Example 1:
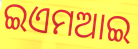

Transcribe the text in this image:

ଇଏମଆଇ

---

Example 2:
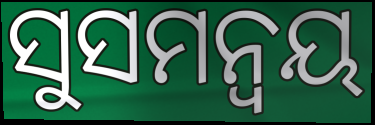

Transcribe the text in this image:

ସୁସମନ୍ୱୟ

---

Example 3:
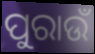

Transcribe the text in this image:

ପୁରାଉଁ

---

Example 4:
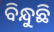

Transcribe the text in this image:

ବିନ୍ଧୁଛି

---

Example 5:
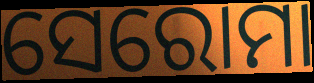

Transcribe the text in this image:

ସେରୋମା